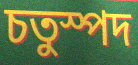
চতুস্পদ